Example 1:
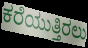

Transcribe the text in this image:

ಕರೆಯುತ್ತಿರಲು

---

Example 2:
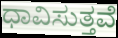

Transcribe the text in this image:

ಧಾವಿಸುತ್ತವೆ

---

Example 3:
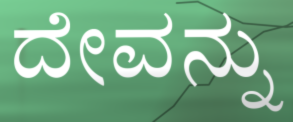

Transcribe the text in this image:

ದೇವನ್ನು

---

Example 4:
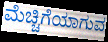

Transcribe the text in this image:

ಮೆಚ್ಚಿಗೆಯಾಗುವ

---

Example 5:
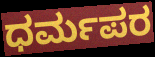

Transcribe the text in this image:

ಧರ್ಮಪರ